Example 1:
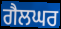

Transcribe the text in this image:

ਗੈਲਘਰ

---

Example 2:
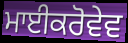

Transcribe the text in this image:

ਮਾਈਕਰੋਵੇਵ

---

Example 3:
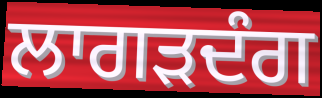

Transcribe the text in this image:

ਲਾਗੜਦੰਗ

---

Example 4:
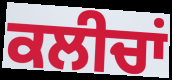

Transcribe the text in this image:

ਕਲੀਚਾਂ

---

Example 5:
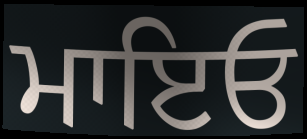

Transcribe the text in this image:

ਮਾਇਓ